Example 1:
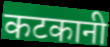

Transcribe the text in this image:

कटकानी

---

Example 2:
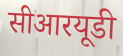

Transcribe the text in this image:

सीआरयूडी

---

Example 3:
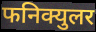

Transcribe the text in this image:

फनिक्युलर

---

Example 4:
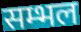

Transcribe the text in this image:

सम्भल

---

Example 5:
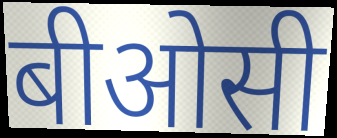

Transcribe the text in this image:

बीओसी